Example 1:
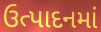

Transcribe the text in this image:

ઉત્પાદનમાં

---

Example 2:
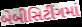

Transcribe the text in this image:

બેબીસિટીંગમાં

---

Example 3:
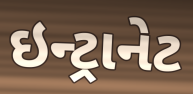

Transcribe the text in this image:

ઇન્ટ્રાનેટ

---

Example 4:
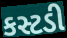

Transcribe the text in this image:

કસ્ટડી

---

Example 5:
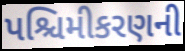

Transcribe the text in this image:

પશ્ચિમીકરણની